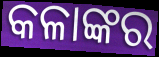
କଳାଙ୍କର